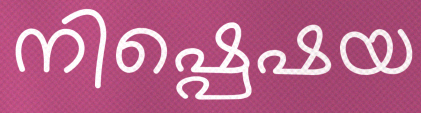
നിഷ്പെഷയ